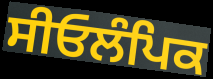
ਸੀਓਲੰਪਿਕ